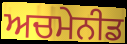
ਅਚਮੇਨੀਡ